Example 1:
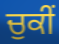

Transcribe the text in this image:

ਚੁਕੀਂ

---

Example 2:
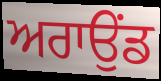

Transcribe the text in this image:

ਅਰਾਉਂਡ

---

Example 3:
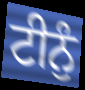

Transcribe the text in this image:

ਟੀਨੁੰ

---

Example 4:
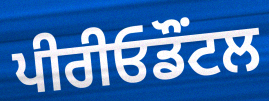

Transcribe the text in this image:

ਪੀਰੀਓਡੌਂਟਲ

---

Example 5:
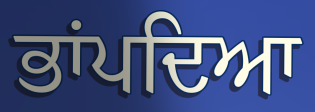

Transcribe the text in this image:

ਭਾਂਪਦਿਆ